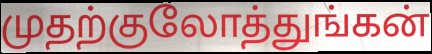
முதற்குலோத்துங்கன்